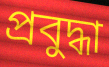
প্রবুদ্ধা